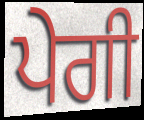
ਪੇਗੀ